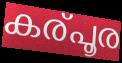
കര്പൂര